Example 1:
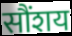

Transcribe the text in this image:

सौंशय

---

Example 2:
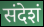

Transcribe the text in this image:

संदेशं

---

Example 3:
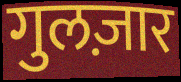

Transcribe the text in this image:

गुलज़ार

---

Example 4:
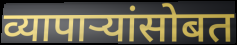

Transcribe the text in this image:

व्यापाऱ्यांसोबत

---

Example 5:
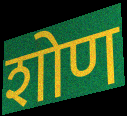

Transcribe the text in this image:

शोण